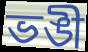
ভঙী